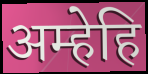
अम्हेहि